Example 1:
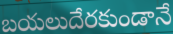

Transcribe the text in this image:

బయలుదేరకుండానే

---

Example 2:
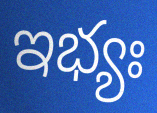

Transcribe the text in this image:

ఇభ్యః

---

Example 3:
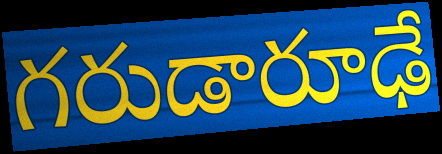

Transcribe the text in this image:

గరుడారూఢే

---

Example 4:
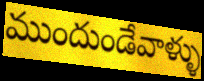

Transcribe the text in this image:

ముందుండేవాళ్ళు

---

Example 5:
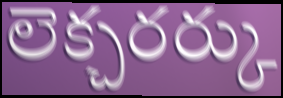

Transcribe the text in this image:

లెక్చరర్కు